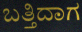
ಬತ್ತಿದಾಗ